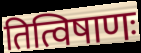
तित्विषाणः